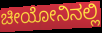
ಚೀಯೋನಿನಲ್ಲಿ